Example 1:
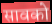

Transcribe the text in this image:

सावको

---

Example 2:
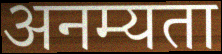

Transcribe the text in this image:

अनम्यता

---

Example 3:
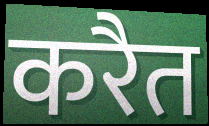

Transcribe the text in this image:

करैत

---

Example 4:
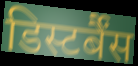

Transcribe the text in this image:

डिस्टर्बैंस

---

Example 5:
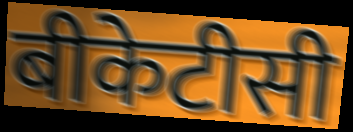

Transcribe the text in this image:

बीकेटीसी